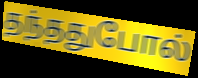
தந்ததுபோல்